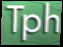
Tph